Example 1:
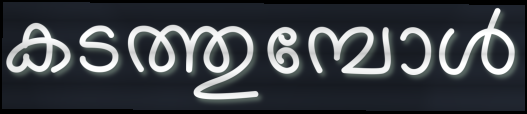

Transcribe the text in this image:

കടത്തുമ്പോൾ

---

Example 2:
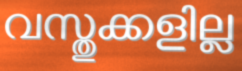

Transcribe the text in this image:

വസ്തുക്കളില്ല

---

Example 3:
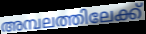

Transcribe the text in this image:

അമ്പലത്തിലേക്ക്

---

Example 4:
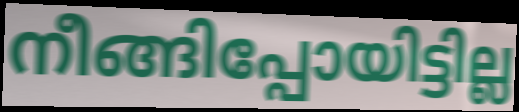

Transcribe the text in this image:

നീങ്ങിപ്പോയിട്ടില്ല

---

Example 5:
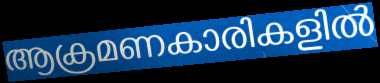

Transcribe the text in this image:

ആക്രമണകാരികളിൽ